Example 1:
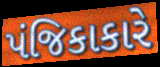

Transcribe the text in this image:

પંજિકાકારે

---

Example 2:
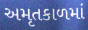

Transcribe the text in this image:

અમૃતકાળમાં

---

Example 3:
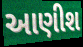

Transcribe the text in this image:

આણીશ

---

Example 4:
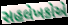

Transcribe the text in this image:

સહલેખકોએ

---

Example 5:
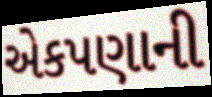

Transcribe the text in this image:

એકપણાની